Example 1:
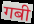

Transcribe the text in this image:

गबी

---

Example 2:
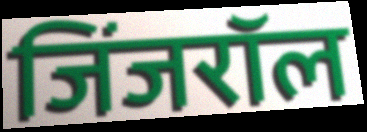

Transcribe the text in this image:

जिंजरॉल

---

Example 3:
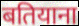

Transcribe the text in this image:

बतियाना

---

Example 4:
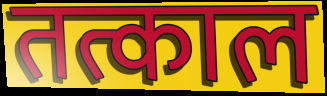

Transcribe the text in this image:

तत्काल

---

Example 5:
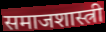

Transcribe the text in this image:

समाजशास्त्री